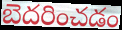
బెదరించడం